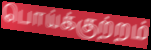
பொய்க்குற்றம்